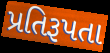
પ્રતિરૂપતા